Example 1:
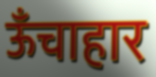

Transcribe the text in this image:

ऊँचाहार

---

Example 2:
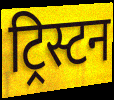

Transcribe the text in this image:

ट्रिस्टन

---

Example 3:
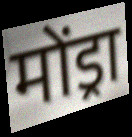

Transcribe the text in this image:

मोंड्रा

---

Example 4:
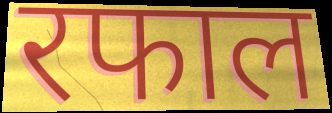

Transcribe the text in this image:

रफाल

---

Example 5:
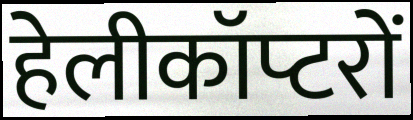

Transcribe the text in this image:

हेलीकॉप्‍टरों